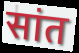
सांत